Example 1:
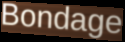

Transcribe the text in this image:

Bondage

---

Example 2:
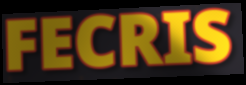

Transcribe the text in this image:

FECRIS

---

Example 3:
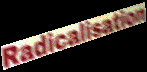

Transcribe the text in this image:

Radicalisation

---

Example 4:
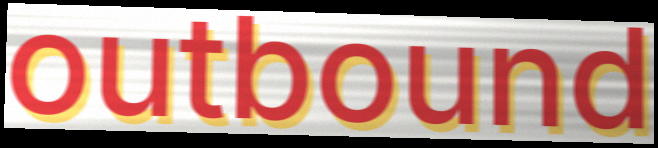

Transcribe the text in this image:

outbound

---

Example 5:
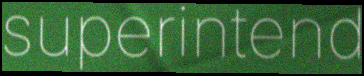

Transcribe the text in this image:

superintend